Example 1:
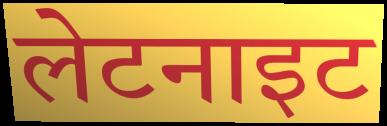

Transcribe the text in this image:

लेटनाइट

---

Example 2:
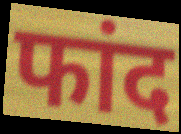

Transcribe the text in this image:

फांद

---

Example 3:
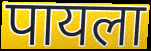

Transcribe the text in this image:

पायला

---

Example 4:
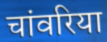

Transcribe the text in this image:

चांवरिया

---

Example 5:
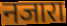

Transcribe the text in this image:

नजारा